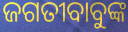
ଜଗତୀବାବୁଙ୍କ